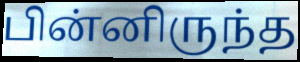
பின்னிருந்த